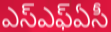
ఎస్ఎఫ్ఏసీ